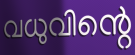
വധുവിന്റെ